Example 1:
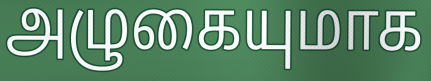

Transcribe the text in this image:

அழுகையுமாக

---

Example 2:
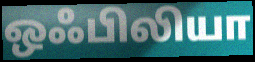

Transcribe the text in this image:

ஒஃபிலியா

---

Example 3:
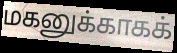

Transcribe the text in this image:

மகனுக்காகக்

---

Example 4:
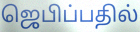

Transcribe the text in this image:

ஜெபிப்பதில்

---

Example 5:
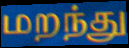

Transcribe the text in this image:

மறந்து